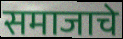
समाजाचे